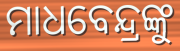
ମାଧବେନ୍ଦ୍ରଙ୍କୁ